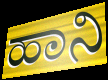
ಹಾನಿ